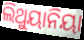
ଲିଥୁୟାନିୟା